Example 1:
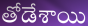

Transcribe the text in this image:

తోడేశాయి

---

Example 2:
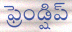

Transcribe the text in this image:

ఫ్రెండ్షిప్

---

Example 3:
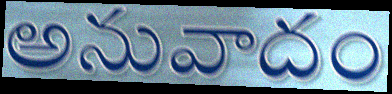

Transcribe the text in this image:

అనువాదం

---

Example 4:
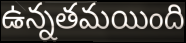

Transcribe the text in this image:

ఉన్నతమయింది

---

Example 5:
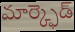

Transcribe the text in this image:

మార్క్ఫెడ్